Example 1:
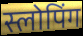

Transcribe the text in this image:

स्लोपिंग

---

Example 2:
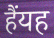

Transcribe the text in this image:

हैंयह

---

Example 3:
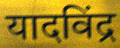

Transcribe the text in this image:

यादविंद्र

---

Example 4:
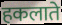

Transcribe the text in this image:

हकलाते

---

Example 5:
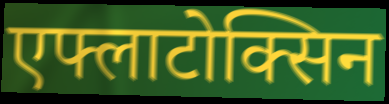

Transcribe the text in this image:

एफ्लाटोक्सिन